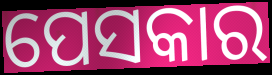
ପେସକାର